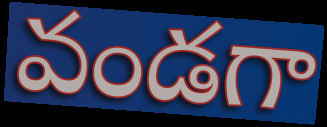
వండగా